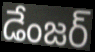
డేంజర్